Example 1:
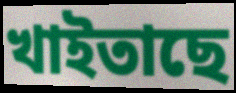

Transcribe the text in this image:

খাইতাছে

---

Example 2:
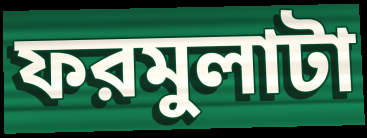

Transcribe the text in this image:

ফরমুলাটা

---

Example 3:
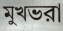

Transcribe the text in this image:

মুখভরা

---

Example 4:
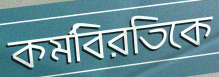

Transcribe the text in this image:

কর্মবিরতিকে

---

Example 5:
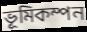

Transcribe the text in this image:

ভূমিকম্পন